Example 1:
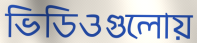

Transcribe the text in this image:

ভিডিওগুলোয়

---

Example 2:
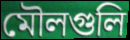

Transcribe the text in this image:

মৌলগুলি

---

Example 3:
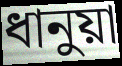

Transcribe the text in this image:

ধানুয়া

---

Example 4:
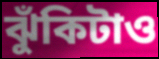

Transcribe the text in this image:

ঝুঁকিটাও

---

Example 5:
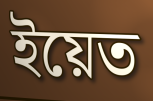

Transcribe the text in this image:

ইয়েত